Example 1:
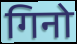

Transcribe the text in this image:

गिनो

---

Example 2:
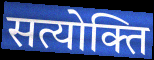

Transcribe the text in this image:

सत्योक्ति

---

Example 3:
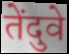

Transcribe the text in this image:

तेंदुवे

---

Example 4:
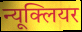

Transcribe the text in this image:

न्यूक्लियर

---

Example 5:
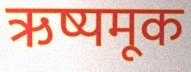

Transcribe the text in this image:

ऋष्यमूक